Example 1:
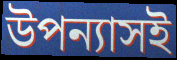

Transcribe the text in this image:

উপন্যাসই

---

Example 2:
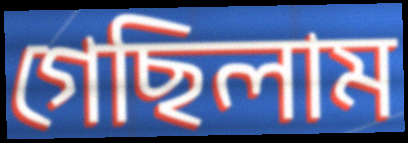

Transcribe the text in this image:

গেছিলাম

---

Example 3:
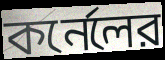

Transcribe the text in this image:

কর্নেলের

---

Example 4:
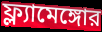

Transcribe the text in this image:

ফ্ল্যামেঙ্গোর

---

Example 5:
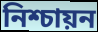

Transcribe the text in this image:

নিশ্চায়ন